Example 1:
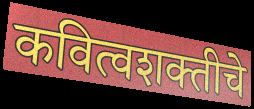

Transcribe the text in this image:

कवित्वशक्तीचे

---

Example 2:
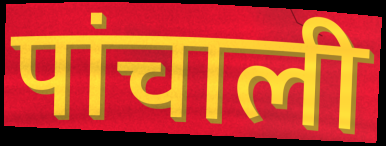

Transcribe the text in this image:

पांचाली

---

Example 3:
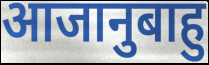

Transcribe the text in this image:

आजानुबाहु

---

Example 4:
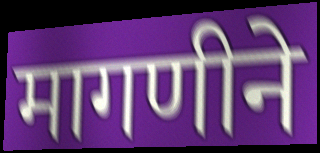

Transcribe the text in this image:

मागणीने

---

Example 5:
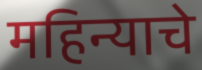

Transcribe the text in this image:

महिन्याचे